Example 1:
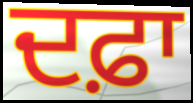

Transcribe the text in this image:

ਦਫ਼ਾ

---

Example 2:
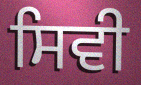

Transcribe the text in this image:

ਸਿਵੀ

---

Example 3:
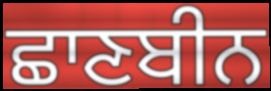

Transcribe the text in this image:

ਛਾਣਬੀਨ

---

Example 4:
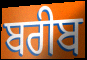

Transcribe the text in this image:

ਬਰੀਬ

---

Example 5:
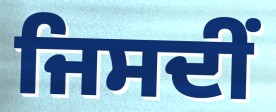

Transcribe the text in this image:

ਜਿਸਦੀਂ